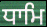
ਧਾਮਿ